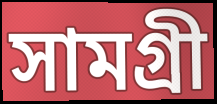
সামগ্রী